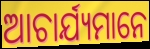
ଆଚାର୍ଯ୍ୟମାନେ